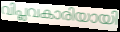
വിപ്ലവകാരിയായി